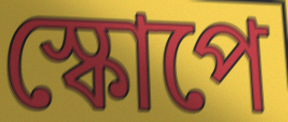
স্কোপে